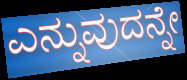
ಎನ್ನುವುದನ್ನೇ